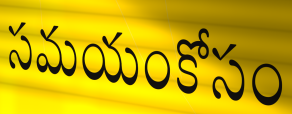
సమయంకోసం